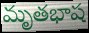
మృతభాష